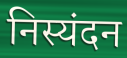
निस्यंदन